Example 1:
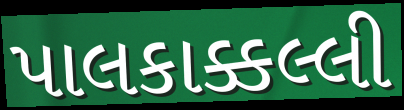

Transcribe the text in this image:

પાલકાક્કલ્લી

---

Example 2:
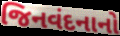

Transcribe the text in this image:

જિનવંદનાનો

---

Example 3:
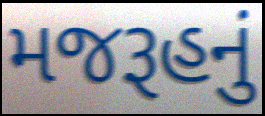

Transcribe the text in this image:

મજરૂહનું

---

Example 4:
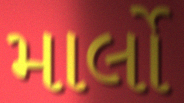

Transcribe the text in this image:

માર્લો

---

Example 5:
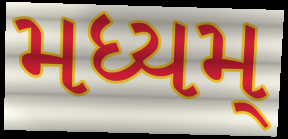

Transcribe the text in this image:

મધ્યમ્